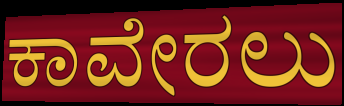
ಕಾವೇರಲು